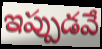
ఇప్పుడవే